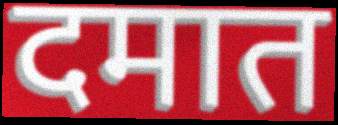
दमात